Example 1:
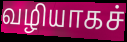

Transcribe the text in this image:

வழியாகச்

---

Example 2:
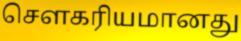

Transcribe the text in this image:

சௌகரியமானது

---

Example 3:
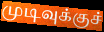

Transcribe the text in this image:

முடிவுக்குச்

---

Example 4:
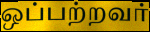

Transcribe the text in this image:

ஒப்பற்றவர்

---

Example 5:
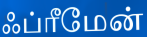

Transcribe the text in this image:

ஃப்ரீமேன்